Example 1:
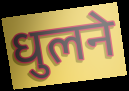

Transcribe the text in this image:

धुलने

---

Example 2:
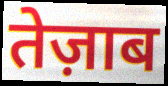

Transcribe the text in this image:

तेज़ाब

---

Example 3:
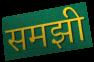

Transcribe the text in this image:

समझी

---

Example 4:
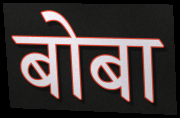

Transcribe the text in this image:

बोबा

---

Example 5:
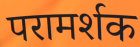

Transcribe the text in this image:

परामर्शक